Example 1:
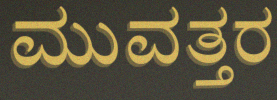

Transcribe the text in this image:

ಮುವತ್ತರ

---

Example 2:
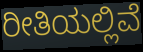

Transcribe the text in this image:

ರೀತಿಯಲ್ಲಿವೆ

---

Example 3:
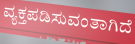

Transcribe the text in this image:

ವ್ಯಕ್ತಪಡಿಸುವಂತಾಗಿದೆ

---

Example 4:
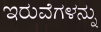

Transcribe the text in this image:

ಇರುವೆಗಳನ್ನು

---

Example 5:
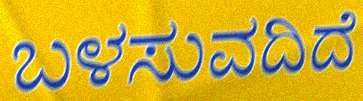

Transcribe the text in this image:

ಬಳಸುವದಿದೆ